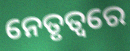
ନେତୃତ୍ଵରେ